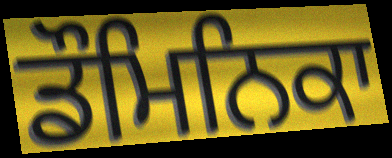
ਡੌਮਿਨਿਕਾ